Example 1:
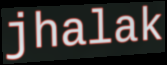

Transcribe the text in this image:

jhalak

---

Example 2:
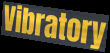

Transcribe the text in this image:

Vibratory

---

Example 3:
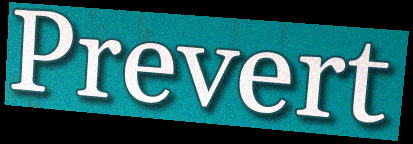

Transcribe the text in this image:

Prevert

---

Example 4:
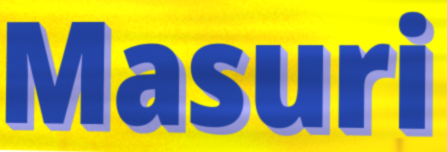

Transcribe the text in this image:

Masuri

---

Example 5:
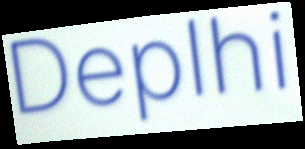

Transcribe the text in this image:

Deplhi